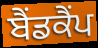
ਬੈਂਡਕੈਂਪ